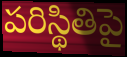
పరిస్థితిపై